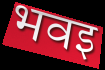
भवइ